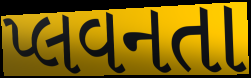
પ્લવનતા